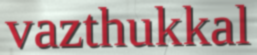
vazthukkal